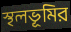
স্থলভূমির